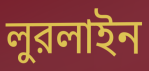
লুরলাইন